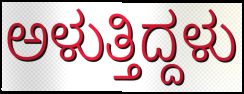
ಅಳುತ್ತಿದ್ದಳು